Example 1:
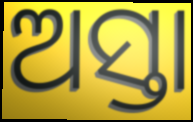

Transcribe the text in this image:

ଅସ୍ତା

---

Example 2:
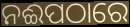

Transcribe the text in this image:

ନଈପଠାରେ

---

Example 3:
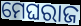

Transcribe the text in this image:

ମେଘରାଜ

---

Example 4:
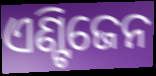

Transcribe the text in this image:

ଏଣ୍ଟିଜେନ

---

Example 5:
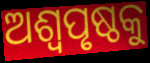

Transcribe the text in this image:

ଅଶ୍ୱପୃଷ୍ଠକୁ